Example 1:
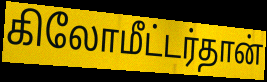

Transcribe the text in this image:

கிலோமீட்டர்தான்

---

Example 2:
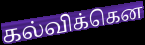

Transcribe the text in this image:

கல்விக்கென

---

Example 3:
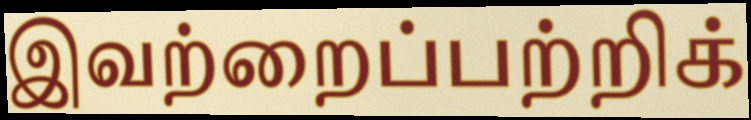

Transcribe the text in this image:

இவற்றைப்பற்றிக்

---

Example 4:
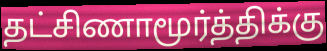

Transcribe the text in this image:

தட்சிணாமூர்த்திக்கு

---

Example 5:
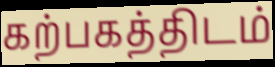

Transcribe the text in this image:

கற்பகத்திடம்